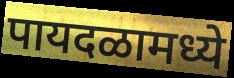
पायदळामध्ये